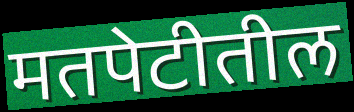
मतपेटीतील